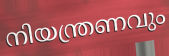
നിയന്ത്രണവും